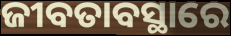
ଜୀବତାବସ୍ଥାରେ